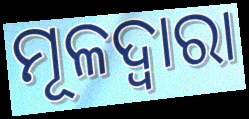
ମୂଳଦ୍ଵାରା